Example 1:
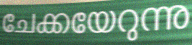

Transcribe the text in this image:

ചേക്കയേറുന്നു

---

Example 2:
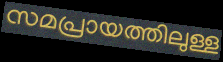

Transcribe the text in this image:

സമപ്രായത്തിലുള്ള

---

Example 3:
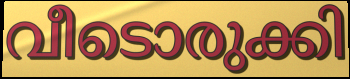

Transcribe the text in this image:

വീടൊരുക്കി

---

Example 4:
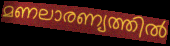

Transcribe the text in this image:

മണലാരണ്യത്തിൽ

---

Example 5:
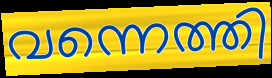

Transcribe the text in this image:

വന്നെത്തി